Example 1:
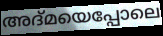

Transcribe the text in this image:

അദ്മയെപ്പോലെ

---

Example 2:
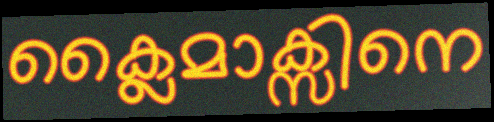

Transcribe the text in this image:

ക്ലൈമാക്സിനെ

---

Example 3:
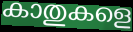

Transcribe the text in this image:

കാതുകളെ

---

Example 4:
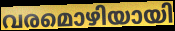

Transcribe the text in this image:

വരമൊഴിയായി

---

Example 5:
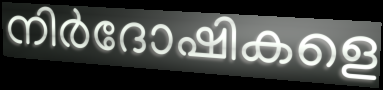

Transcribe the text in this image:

നിർദോഷികളെ